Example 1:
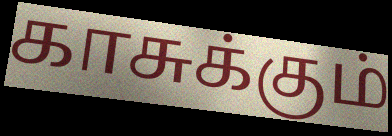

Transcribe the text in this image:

காசுக்கும்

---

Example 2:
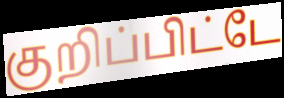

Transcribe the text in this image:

குறிப்பிட்டே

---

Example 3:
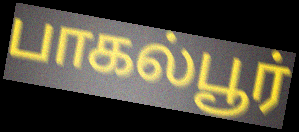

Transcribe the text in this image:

பாகல்பூர்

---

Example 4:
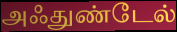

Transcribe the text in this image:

அஃதுண்டேல்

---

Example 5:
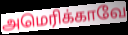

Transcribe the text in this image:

அமெரிக்காவே